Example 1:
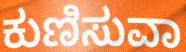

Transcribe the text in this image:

ಕುಣಿಸುವಾ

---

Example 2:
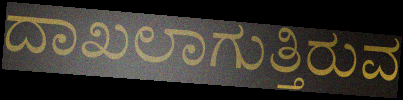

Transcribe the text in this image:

ದಾಖಲಾಗುತ್ತಿರುವ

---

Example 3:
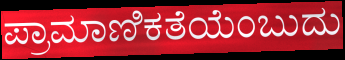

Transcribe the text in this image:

ಪ್ರಾಮಾಣಿಕತೆಯೆಂಬುದು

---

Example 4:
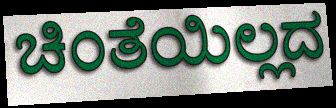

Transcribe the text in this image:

ಚಿಂತೆಯಿಲ್ಲದ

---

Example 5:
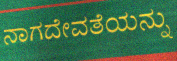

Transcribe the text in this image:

ನಾಗದೇವತೆಯನ್ನು